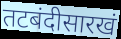
तटबंदीसारखं